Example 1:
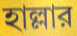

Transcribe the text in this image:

হাল্লার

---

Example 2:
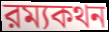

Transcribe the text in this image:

রম্যকথন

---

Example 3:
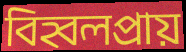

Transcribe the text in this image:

বিহ্বলপ্রায়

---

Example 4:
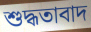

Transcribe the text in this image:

শুদ্ধতাবাদ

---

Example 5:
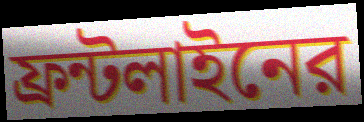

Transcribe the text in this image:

ফ্রন্টলাইনের